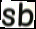
sb